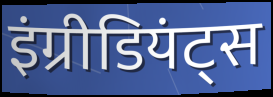
इंग्रीडियंट्स